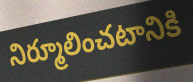
నిర్మూలించటానికి